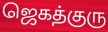
ஜெகத்குரு